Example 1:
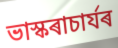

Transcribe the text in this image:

ভাস্কৰাচাৰ্যৰ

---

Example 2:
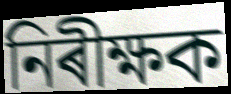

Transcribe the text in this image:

নিৰীক্ষক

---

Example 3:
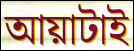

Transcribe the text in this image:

আয়াটাই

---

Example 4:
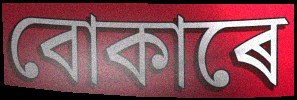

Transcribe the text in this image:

বোকাৰে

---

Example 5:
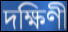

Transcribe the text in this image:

দক্ষিণী